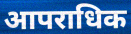
आपराधिक